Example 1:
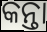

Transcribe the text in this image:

କନ୍ତା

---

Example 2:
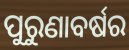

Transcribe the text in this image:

ପୁରୁଣାବର୍ଷର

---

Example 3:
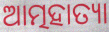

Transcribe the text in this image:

ଆତ୍ମହାତ୍ୟା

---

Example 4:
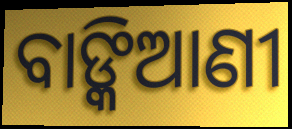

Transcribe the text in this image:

ବାଙ୍କିଆଣୀ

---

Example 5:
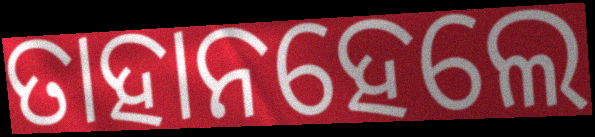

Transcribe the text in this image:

ତାହାନହେଲେ